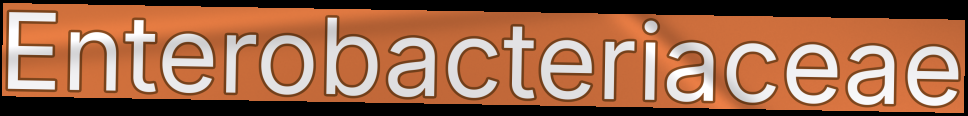
Enterobacteriaceae